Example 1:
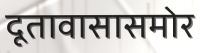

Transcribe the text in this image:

दूतावासासमोर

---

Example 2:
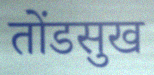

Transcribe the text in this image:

तोंडसुख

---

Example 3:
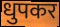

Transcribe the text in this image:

धुपकर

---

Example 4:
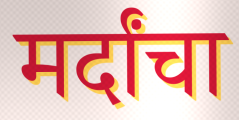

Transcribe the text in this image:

मर्दांचा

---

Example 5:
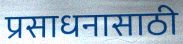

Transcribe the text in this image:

प्रसाधनासाठी